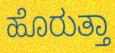
ಹೊರುತ್ತಾ